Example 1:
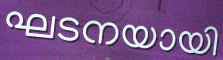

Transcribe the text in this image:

ഘടനയായി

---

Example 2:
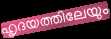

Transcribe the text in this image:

ഹൃദയത്തിലേയും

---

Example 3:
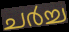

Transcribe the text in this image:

ചർച്ച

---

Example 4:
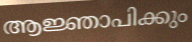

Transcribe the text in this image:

ആജ്ഞാപിക്കും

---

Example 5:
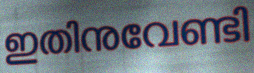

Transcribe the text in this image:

ഇതിനുവേണ്ടി